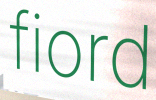
fiord